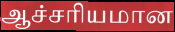
ஆச்சரியமான